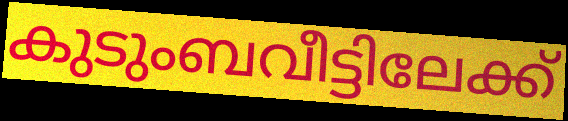
കുടുംബവീട്ടിലേക്ക്